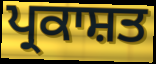
ਪ੍ਰਕਾਸ਼ਤ